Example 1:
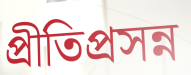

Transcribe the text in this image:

প্রীতিপ্রসন্ন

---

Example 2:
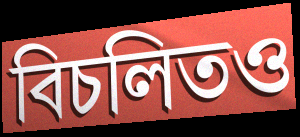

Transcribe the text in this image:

বিচলিতও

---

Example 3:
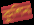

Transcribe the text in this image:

কুশিন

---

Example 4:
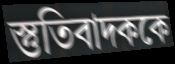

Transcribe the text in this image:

স্তুতিবাদককে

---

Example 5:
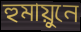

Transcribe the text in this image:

হুমায়ুনে